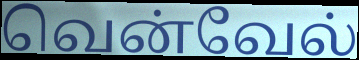
வென்வேல்